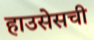
हाउसेसची